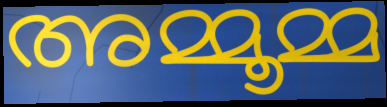
അമ്മൂമ്മ